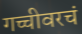
गच्चीवरचं